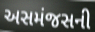
અસમંજસની